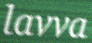
lavva